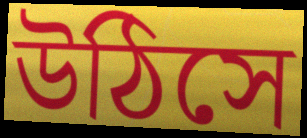
উঠিসে